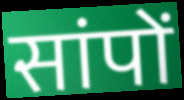
सांपों